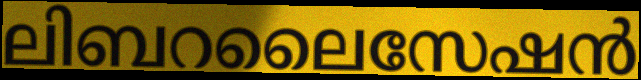
ലിബറലൈസേഷൻ